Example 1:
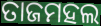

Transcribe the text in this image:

ତାଜମହଲ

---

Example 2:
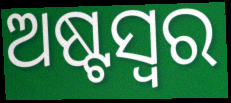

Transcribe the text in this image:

ଅଷ୍ଟସ୍ୱର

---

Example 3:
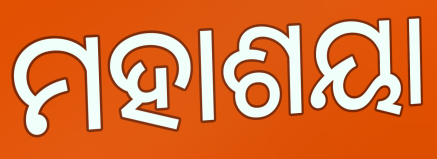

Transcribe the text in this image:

ମହାଶୟା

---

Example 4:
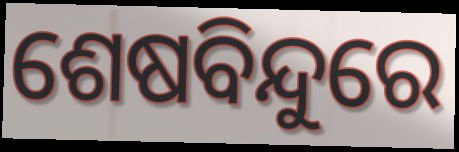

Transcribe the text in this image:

ଶେଷବିନ୍ଦୁରେ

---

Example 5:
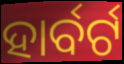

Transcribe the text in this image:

ହାର୍ବର୍ଟ